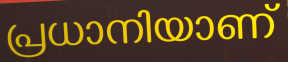
പ്രധാനിയാണ്